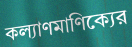
কল্যাণমাণিক্যের